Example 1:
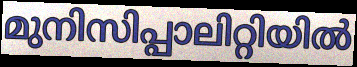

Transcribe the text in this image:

മുനിസിപ്പാലിറ്റിയിൽ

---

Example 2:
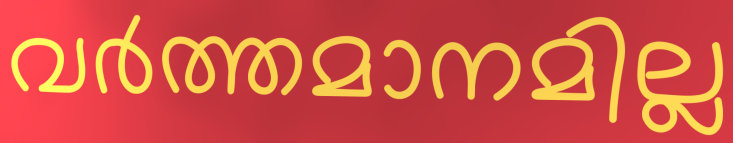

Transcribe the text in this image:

വർത്തമാനമില്ല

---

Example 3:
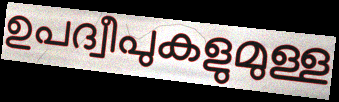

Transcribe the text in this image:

ഉപദ്വീപുകളുമുള്ള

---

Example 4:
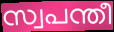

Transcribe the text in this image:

സ്വപന്തീ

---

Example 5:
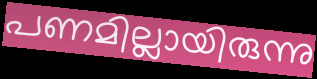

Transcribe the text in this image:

പണമില്ലായിരുന്നു